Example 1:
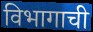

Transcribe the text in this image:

विभागाची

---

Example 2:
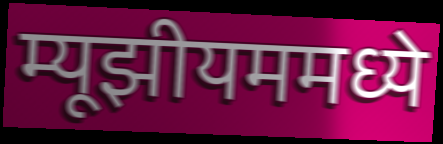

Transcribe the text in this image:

म्यूझीयममध्ये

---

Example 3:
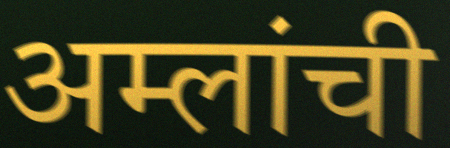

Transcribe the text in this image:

अम्‍लांची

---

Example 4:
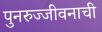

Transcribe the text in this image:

पुनरुज्जीवनाची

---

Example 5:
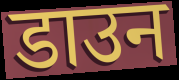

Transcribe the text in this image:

डाउन